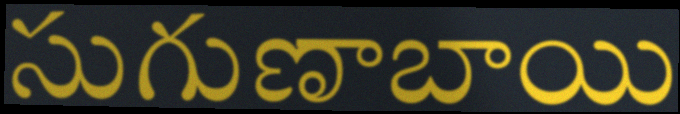
సుగుణాబాయి